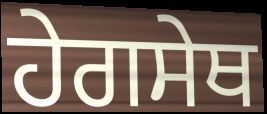
ਹੇਗਸੇਥ